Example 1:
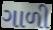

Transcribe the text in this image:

ગાળી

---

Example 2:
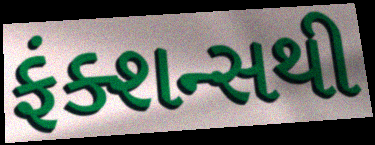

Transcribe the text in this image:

ફંક્શન્સથી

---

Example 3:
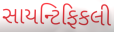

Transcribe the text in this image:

સાયન્ટિફિકલી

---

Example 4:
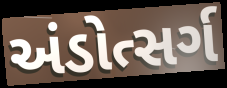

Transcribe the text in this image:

અંડોત્સર્ગ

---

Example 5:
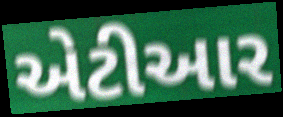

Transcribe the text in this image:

એટીઆર